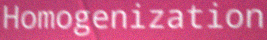
Homogenization